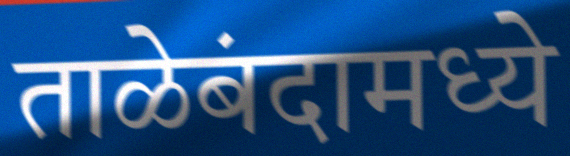
ताळेबंदामध्ये